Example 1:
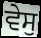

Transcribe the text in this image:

ਵੇਸੁ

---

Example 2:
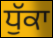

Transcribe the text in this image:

ਧੁੱਕਾ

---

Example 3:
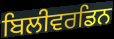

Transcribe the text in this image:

ਬਿਲੀਵਰਡਿਨ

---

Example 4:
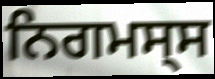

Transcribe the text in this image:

ਨਿਗਮਸ੍ਸ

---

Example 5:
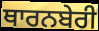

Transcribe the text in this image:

ਥਾਰਨਬੇਰੀ